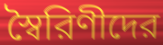
স্বৈরিণীদের